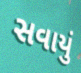
સવાયું